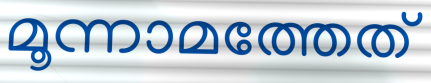
മൂന്നാമത്തേത്